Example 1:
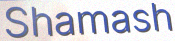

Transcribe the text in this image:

Shamash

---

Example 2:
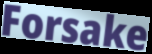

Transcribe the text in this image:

Forsake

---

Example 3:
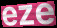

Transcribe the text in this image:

eze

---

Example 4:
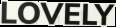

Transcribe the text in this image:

LOVELY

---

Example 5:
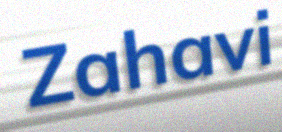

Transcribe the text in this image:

Zahavi